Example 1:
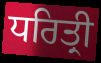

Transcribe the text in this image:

ਧਰਿਤ੍ਰੀ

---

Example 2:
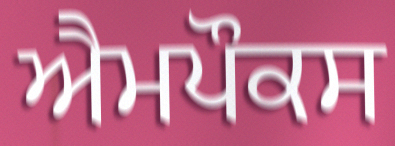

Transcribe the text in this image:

ਐਮਪੌਕਸ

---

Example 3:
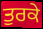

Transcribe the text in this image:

ਤੁਰਕੇ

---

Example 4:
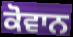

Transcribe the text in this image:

ਕੋਵਾਨ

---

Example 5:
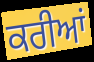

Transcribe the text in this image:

ਕਰੀਆਂ